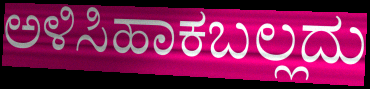
ಅಳಿಸಿಹಾಕಬಲ್ಲದು